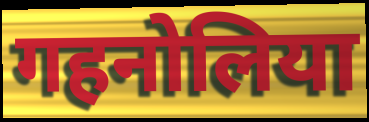
गहनोलिया